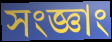
সংজ্ঞাং